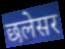
छलेसर